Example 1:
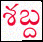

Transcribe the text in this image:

శబ్ద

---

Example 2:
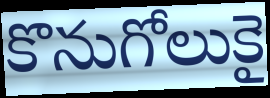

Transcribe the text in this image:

కొనుగోలుకై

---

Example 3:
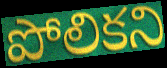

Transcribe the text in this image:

పోలికని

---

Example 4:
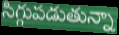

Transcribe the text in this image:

సిగ్గుపడుతున్నా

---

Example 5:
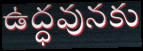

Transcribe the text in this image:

ఉద్ధవునకు